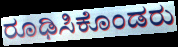
ರೂಢಿಸಿಕೊಂಡರು